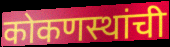
कोकणस्थांची